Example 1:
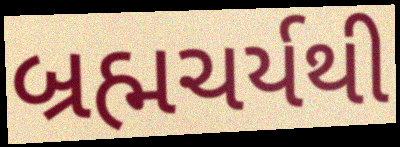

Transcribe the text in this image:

બ્રહ્મચર્યથી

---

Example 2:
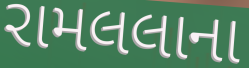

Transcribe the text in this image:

રામલલાના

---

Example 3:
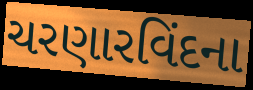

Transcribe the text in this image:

ચરણારવિંદના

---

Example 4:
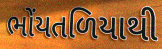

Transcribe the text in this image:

ભોંયતળિયાથી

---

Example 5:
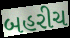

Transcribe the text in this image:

બહરીચ